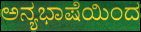
ಅನ್ಯಭಾಷೆಯಿಂದ